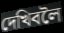
দেখিবলৈ